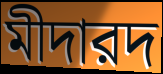
মীদারদ